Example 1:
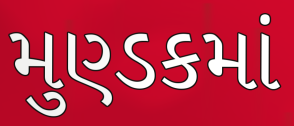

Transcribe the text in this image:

મુણ્ડકમાં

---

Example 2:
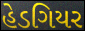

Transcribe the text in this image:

હેડગિયર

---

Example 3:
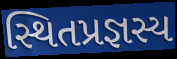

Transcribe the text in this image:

સ્થિતપ્રજ્ઞસ્ય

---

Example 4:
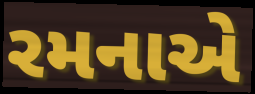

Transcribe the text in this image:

રમનાએ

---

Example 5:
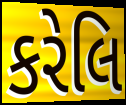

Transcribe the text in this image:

કરેલિ